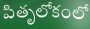
పితృలోకంలో